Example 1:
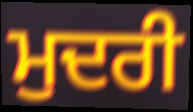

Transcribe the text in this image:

ਮੁਦਰੀ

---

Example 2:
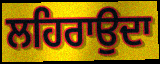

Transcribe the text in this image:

ਲਹਿਰਾਉਦਾ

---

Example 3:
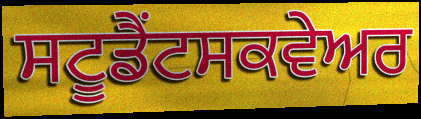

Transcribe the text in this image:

ਸਟੂਡੈਂਟਸਕਵੇਅਰ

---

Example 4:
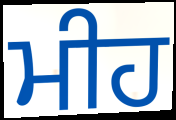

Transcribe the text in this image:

ਮੀਹ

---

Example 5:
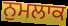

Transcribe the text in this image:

ਨੁਮਲਾਕ